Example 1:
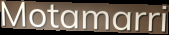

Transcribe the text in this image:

Motamarri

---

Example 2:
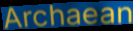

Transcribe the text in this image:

Archaean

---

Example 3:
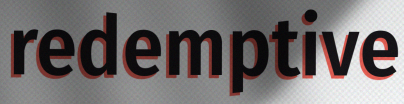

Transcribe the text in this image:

redemptive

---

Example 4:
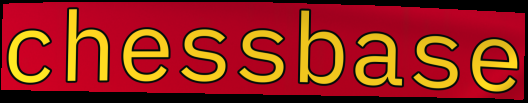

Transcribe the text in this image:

chessbase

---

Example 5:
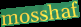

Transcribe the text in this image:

mosshaf